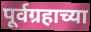
पूर्वग्रहाच्या